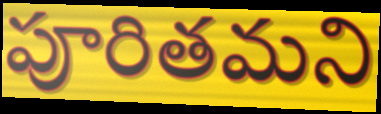
పూరితమని